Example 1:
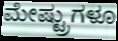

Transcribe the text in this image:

ಮೇಷ್ಟ್ರುಗಳೂ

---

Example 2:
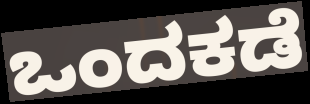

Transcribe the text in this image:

ಒಂದಕಡೆ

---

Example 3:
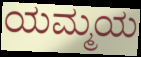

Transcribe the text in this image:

ಯಮ್ಮಯ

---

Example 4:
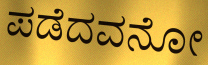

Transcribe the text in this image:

ಪಡೆದವನೋ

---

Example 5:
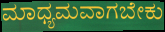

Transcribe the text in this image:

ಮಾಧ್ಯಮವಾಗಬೇಕು